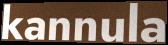
kannula